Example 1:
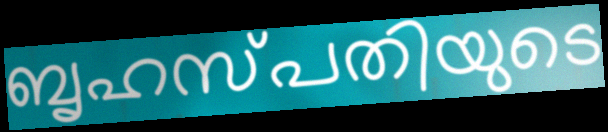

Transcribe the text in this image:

ബൃഹസ്പതിയുടെ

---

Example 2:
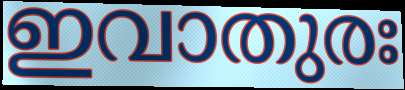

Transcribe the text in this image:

ഇവാതുരഃ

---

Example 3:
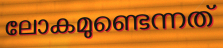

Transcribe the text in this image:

ലോകമുണ്ടെന്നത്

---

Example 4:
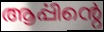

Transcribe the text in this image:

ആൎപ്പിന്റെ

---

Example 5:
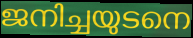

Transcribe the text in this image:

ജനിച്ചയുടനെ